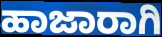
ಹಾಜಾರಾಗಿ